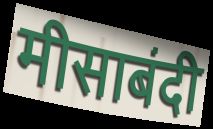
मीसाबंदी